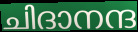
ചിദാനന്ദ